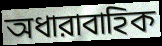
অধারাবাহিক